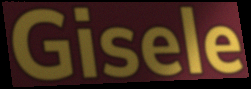
Gisele